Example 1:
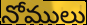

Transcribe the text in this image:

నోములు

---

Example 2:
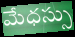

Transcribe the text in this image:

మేధస్సు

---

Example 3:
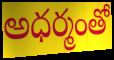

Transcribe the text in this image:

అధర్మంతో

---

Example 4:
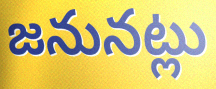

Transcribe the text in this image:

జనునట్లు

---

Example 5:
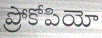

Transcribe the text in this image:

ప్రోకోపియో